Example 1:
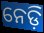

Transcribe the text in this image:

ନେଡ଼ି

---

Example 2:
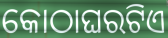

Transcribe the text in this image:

କୋଠାଘରଟିଏ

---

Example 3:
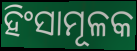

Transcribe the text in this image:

ହିଂସାମୂଳକ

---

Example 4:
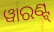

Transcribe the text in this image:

ୱାରଣ୍ଟ୍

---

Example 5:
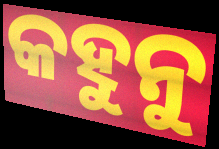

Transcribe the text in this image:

କହୁନୁ